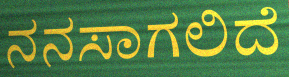
ನನಸಾಗಲಿದೆ